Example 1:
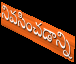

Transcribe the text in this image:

నివసించడాన్ని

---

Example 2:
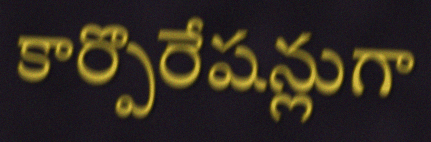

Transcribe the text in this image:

కార్పొరేషన్లుగా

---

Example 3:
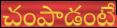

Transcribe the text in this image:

చంపాడంటే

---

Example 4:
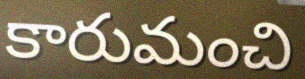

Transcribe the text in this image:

కారుమంచి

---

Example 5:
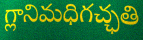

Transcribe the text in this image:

గ్లానిమధిగచ్ఛతి